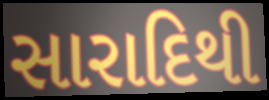
સારાદિથી